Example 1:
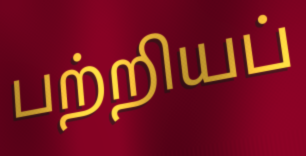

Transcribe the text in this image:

பற்றியப்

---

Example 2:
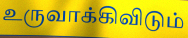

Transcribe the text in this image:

உருவாக்கிவிடும்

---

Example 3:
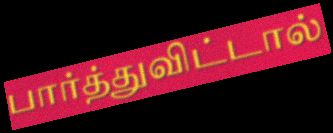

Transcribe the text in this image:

பார்த்துவிட்டால்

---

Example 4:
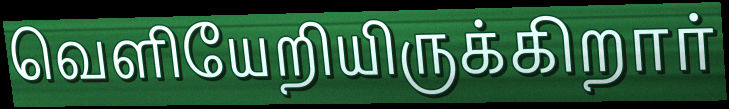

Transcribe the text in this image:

வெளியேறியிருக்கிறார்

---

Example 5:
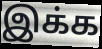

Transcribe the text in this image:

இக்க